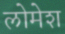
लोमेश